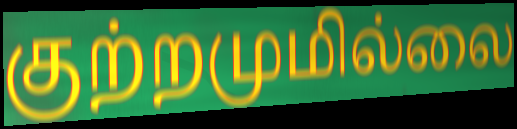
குற்றமுமில்லை